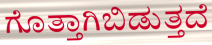
ಗೊತ್ತಾಗಿಬಿಡುತ್ತದೆ